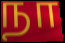
நா